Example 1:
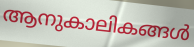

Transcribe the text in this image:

ആനുകാലികങ്ങൾ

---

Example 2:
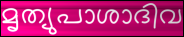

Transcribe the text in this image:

മൃത്യുപാശാദിവ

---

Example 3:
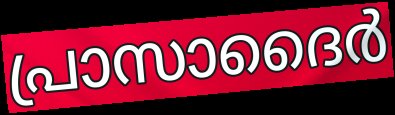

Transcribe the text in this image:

പ്രാസാദൈർ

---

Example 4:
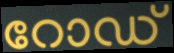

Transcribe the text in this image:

റോഡ്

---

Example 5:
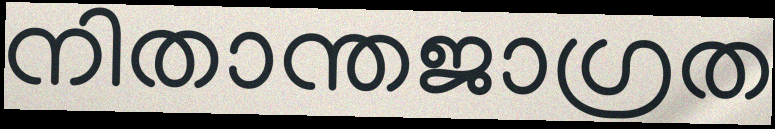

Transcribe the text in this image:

നിതാന്തജാഗ്രത